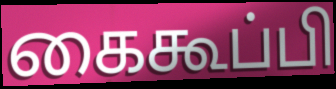
கைகூப்பி